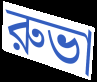
রুভা